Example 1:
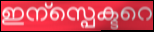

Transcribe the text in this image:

ഇന്സ്പെക്ടറെ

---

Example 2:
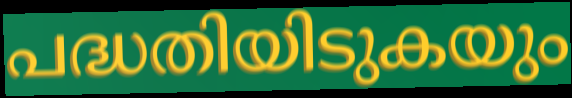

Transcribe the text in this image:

പദ്ധതിയിടുകയും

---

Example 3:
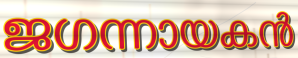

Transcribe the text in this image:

ജഗന്നായകൻ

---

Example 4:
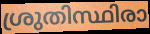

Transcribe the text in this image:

ശ്രുതിസ്ഥിരാ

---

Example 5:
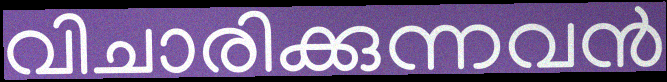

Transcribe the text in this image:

വിചാരിക്കുന്നവൻ